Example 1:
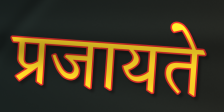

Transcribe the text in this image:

प्रजायते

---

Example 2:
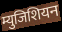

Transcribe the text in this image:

म्‍युजिशियन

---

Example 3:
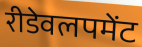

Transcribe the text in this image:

रीडेवलपमेंट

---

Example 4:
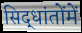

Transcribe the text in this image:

सिद्धांतोंमें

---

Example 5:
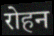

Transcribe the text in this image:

रोहन